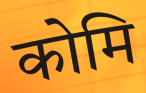
कोमि